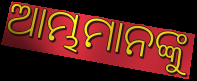
ଆମ୍ଭମାନଙ୍କୁ